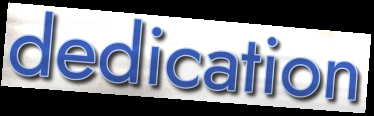
dedication